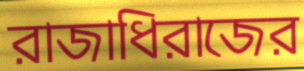
রাজাধিরাজের